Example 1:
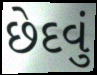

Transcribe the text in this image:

છેદવું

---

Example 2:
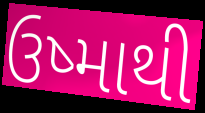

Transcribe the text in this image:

ઉષ્માથી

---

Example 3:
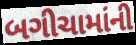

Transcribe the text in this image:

બગીચામાંની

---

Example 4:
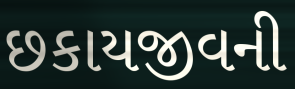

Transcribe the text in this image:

છકાયજીવની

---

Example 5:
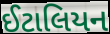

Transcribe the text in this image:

ઈટાલિયન